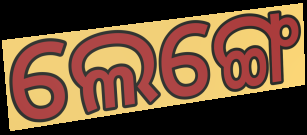
ଲେଙ୍ଗେ